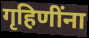
गृहिणींना